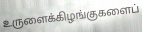
உருளைக்கிழங்குகளைப்